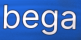
bega